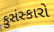
કુસંસ્કારો